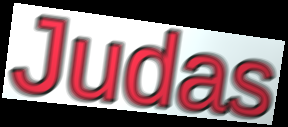
Judas